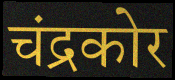
चंद्रकोर